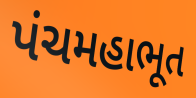
પંચમહાભૂત